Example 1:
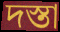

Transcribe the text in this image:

দস্তা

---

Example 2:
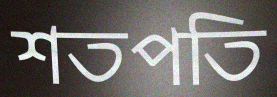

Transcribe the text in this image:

শতপতি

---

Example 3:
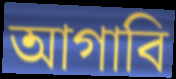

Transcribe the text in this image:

আগাবি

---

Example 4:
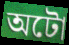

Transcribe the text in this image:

অটো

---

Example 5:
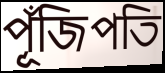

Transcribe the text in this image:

পূঁজিপতি